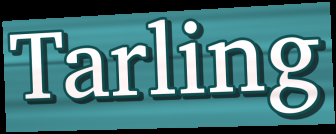
Tarling